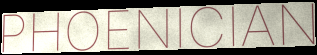
PHOENICIAN